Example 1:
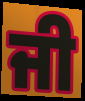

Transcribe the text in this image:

ਜੀ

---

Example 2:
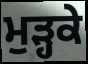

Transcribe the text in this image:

ਮੁੜ੍ਹਕੇ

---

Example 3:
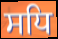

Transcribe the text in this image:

ਸਧਿ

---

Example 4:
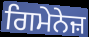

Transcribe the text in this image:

ਗਿਮੇਨੇਜ਼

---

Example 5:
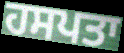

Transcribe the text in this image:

ਹਸਪਤਾ